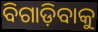
ବିଗାଡ଼ିବାକୁ